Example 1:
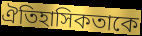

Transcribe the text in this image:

ঐতিহাসিকতাকে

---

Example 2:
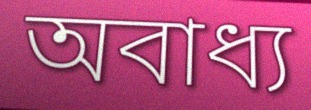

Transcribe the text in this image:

অবাধ্য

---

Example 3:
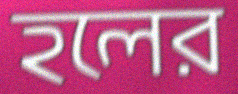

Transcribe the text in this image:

হলের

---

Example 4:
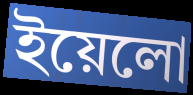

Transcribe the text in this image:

ইয়েলো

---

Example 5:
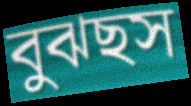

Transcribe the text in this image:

বুঝছস